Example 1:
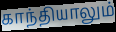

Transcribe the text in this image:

காந்தியாலும்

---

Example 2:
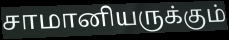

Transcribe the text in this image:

சாமானியருக்கும்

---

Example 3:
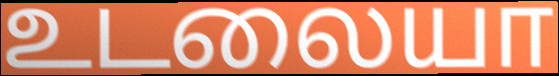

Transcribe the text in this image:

உடலையா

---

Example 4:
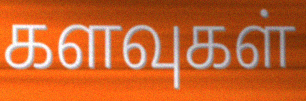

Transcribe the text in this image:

களவுகள்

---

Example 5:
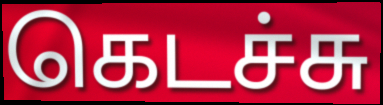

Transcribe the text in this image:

கெடச்சு